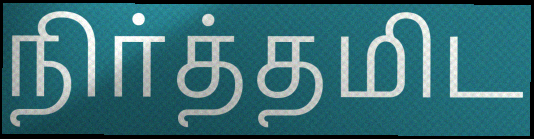
நிர்த்தமிட